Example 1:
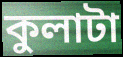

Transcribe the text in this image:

কুলাটা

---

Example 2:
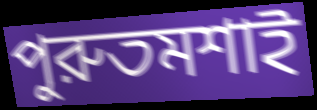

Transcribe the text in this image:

পুরুতমশাই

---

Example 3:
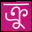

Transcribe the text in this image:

ক্রু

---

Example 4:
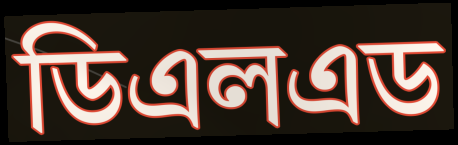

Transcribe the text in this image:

ডিএলএড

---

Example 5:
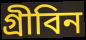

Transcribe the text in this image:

গ্রীবিন